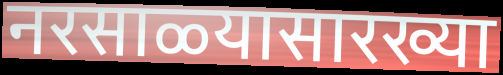
नरसाळ्यासारख्या